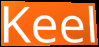
Keel